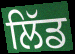
ਲਿੱਡ